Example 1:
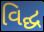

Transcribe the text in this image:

વિદ્ઘ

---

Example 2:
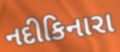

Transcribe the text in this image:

નદીકિનારા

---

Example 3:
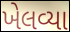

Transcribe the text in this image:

ખેલવ્યા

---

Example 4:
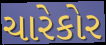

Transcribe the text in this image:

ચારેકોર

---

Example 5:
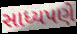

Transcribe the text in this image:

સાધ્યપણે